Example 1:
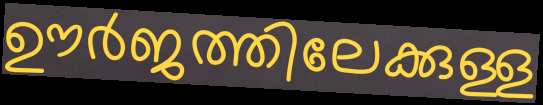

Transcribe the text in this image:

ഊർജത്തിലേക്കുള്ള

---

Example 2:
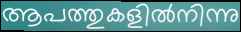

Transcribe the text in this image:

ആപത്തുകളിൽനിന്നു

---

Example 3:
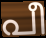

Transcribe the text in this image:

പീ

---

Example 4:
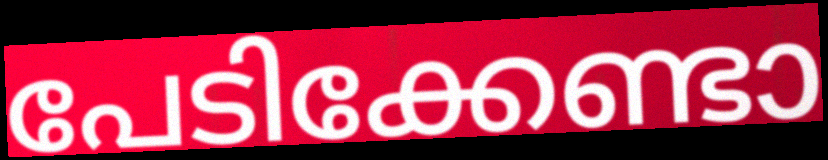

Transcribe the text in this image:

പേടിക്കേണ്ടാ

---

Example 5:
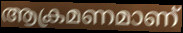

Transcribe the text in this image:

ആക്രമണമാണ്